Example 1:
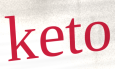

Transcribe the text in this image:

keto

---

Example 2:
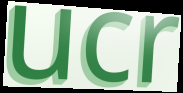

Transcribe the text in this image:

ucr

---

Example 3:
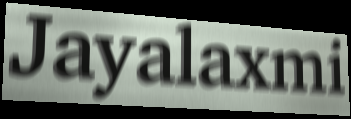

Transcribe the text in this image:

Jayalaxmi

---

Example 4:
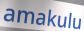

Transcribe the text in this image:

amakulu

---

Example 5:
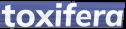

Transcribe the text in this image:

toxifera